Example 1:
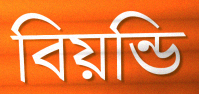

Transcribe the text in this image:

বিয়ন্ডি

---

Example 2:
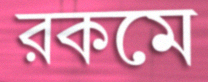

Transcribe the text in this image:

রকমে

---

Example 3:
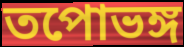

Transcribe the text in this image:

তপোভঙ্গ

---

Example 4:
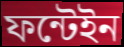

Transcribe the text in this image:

ফন্টেইন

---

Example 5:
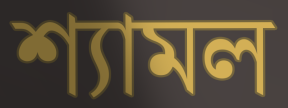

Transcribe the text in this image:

শ্যামল